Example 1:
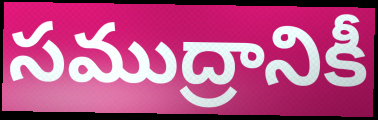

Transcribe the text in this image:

సముద్రానికీ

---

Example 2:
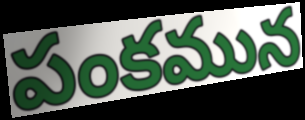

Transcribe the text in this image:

పంకమున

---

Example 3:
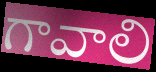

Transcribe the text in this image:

గావాలి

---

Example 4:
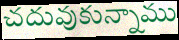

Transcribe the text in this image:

చదువుకున్నాము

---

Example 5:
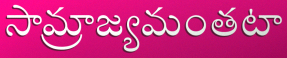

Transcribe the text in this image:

సామ్రాజ్యమంతటా